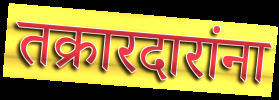
तक्रारदारांना